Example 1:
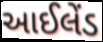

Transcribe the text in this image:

આઈલેંડ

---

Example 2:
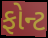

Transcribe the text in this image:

ફોન્ટ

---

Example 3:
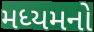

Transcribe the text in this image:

મધ્યમનો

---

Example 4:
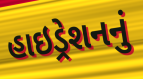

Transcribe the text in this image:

હાઇડ્રેશનનું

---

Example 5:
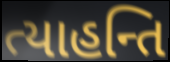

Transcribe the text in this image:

ત્યાહન્તિ